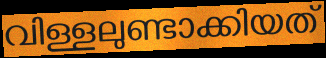
വിള്ളലുണ്ടാക്കിയത്